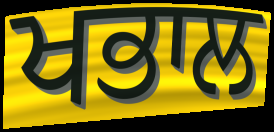
ਖਭਾਲ